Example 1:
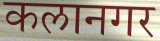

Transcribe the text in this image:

कलानगर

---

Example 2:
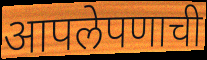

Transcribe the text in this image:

आपलेपणाची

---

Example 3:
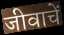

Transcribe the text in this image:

जीवाचें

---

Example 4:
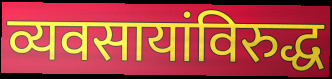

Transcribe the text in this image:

व्यवसायांविरुद्ध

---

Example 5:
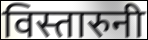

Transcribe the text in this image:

विस्तारुनी